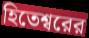
হিতেশ্বরের